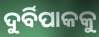
ଦୁର୍ବିପାକକୁ